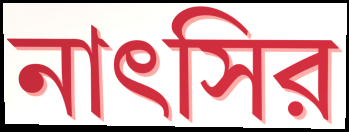
নাৎসির